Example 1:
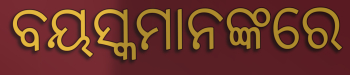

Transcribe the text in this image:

ବୟସ୍କମାନଙ୍କରେ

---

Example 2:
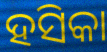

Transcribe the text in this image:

ହସିକା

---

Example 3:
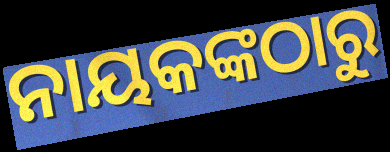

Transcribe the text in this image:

ନାୟକଙ୍କଠାରୁ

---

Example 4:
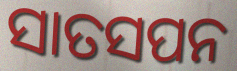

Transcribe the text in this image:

ସାତସପନ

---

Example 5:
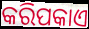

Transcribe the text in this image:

କରିପକାଏ